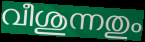
വീശുന്നതും